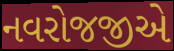
નવરોજજીએ